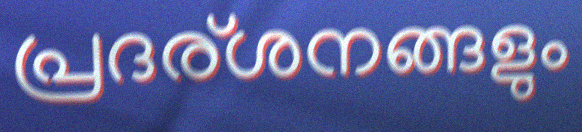
പ്രദര്ശനങ്ങളും